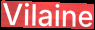
Vilaine